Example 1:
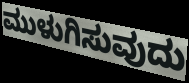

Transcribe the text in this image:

ಮುಳುಗಿಸುವುದು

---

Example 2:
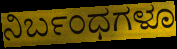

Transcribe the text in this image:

ನಿರ್ಬಂಧಗಳೂ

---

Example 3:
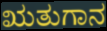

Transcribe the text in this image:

ಋತುಗಾನ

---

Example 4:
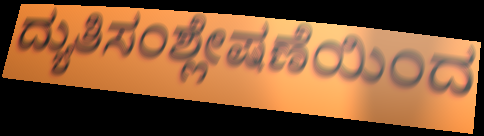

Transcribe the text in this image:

ದ್ಯುತಿಸಂಶ್ಲೇಷಣೆಯಿಂದ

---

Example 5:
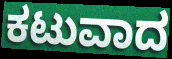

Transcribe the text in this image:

ಕಟುವಾದ